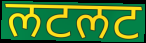
लटलट